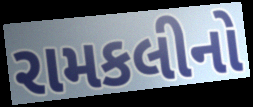
રામકલીનો